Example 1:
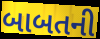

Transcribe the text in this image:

બાબતની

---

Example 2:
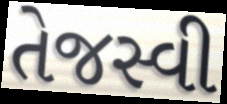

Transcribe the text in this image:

તેજસ્વી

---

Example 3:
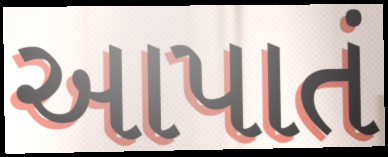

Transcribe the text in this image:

આપાતં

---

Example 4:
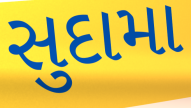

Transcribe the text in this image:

સુદામા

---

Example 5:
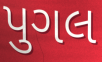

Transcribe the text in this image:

પુગલ